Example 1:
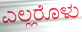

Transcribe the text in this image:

ಎಲ್ಲರೊಳು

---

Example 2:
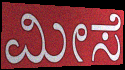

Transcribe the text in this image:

ಮೀಸೆ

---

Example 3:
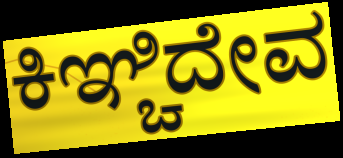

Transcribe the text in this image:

ಕಿಞ್ಚಿದೇವ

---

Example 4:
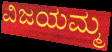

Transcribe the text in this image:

ವಿಜಯಮ್ಮ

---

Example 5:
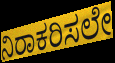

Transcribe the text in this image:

ನಿರಾಕರಿಸಲೇ